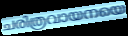
ചരിത്രവായനയെ